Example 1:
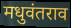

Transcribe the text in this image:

मधुवंतराव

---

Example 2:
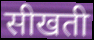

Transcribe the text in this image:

सीखती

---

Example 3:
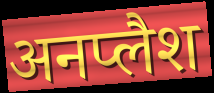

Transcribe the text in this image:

अनप्लैश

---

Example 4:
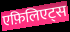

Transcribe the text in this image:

एफ़िलिएट्स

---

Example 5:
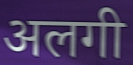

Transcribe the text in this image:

अलगी